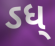
ઽધ્